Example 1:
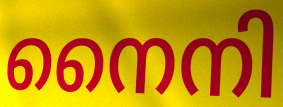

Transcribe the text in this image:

നൈനി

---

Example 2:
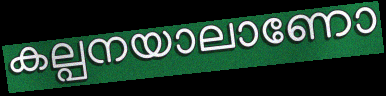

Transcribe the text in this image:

കല്പനയാലാണോ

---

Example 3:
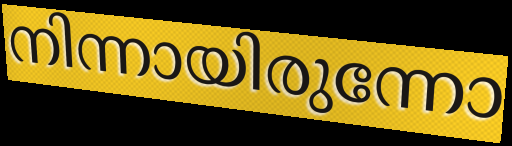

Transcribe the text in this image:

നിന്നായിരുന്നോ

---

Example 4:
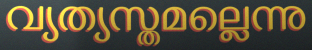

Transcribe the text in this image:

വ്യത്യസ്തമല്ലെന്നു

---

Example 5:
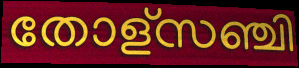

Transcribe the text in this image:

തോള്സഞ്ചി